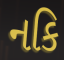
નકિ